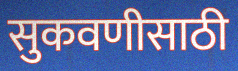
सुकवणीसाठी